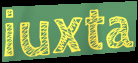
iuxta